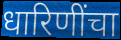
धारिणींचा